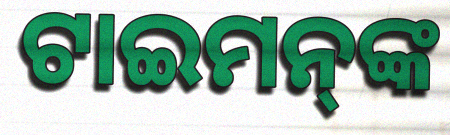
ଟାଇମନ୍‌ଙ୍କ